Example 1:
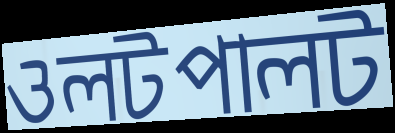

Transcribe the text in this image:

ওলটপালট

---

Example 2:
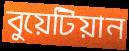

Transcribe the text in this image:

বুয়েটিয়ান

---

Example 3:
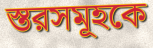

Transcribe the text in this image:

স্তরসমূহকে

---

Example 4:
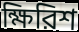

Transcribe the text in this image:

ক্ষিরিশ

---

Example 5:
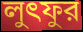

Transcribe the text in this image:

লুৎফুর